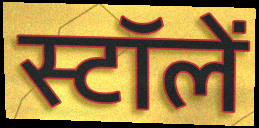
स्टॉलें